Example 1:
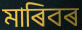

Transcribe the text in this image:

মাৰিবৰ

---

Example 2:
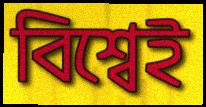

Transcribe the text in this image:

বিশ্বেই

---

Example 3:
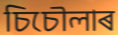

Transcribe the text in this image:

চিচৌলাৰ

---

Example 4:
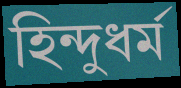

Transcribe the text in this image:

হিন্দুধৰ্ম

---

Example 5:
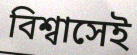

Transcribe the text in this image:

বিশ্বাসেই